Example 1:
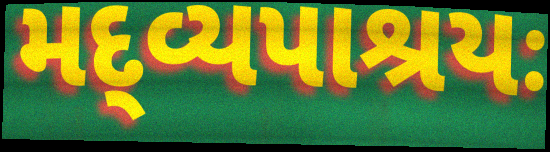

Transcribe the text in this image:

મદ્વ્યપાશ્રયઃ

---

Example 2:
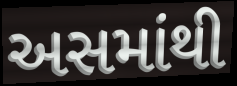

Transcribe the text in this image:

અસમાંથી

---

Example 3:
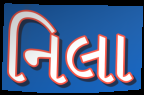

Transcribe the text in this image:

નિલા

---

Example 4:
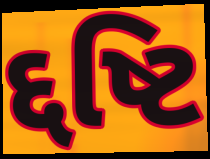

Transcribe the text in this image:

દ્દષ્ટિ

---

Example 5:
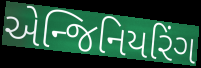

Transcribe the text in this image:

એન્જિનિયરિંગ